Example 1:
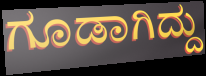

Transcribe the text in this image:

ಗೂಡಾಗಿದ್ದು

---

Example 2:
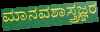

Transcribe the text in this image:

ಮಾನವಶಾಸ್ತ್ರಜ್ಞರ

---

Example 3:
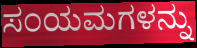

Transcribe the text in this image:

ಸಂಯಮಗಳನ್ನು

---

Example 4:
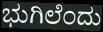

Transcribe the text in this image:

ಭುಗಿಲೆಂದು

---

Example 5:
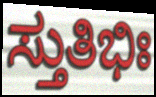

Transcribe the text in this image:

ಸ್ತುತಿಭಿಃ